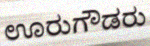
ಊರುಗೌಡರು